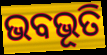
ଭବଭୂତି